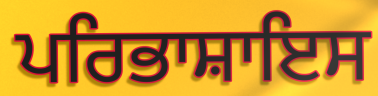
ਪਰਿਭਾਸ਼ਾਇਸ